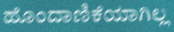
ಹೊಂದಾಣಿಕೆಯಾಗಿಲ್ಲ